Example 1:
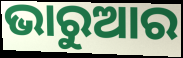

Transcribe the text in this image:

ଭାରୁଆର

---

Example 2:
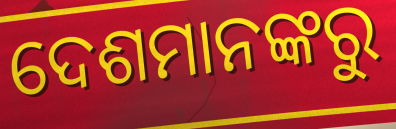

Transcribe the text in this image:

ଦେଶମାନଙ୍କରୁ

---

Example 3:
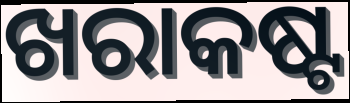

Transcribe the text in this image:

ଖରାକଷ୍ଟ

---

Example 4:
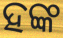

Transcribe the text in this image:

ହଙ୍କ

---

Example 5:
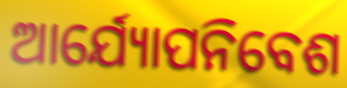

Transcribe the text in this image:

ଆର୍ଯ୍ୟୋପନିବେଶ